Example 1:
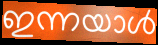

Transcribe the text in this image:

ഇന്നയാൾ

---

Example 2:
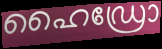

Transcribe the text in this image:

ഹൈഡ്രോ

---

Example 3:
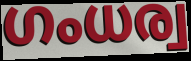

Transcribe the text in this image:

ഗംധര്വ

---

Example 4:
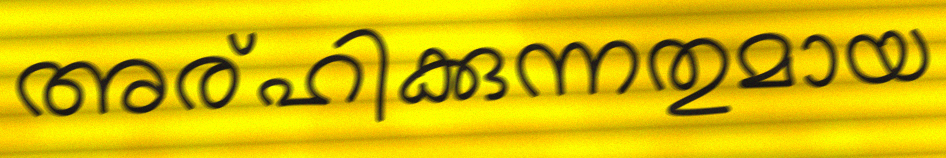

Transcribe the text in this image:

അര്ഹിക്കുന്നതുമായ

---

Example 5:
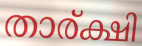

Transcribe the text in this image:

താര്ക്ഷി